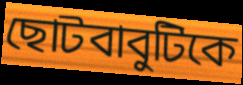
ছোটবাবুটিকে